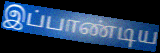
இப்பாண்டிய